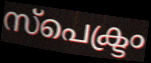
സ്പെക്ട്രം